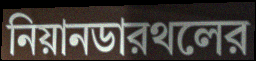
নিয়ানডারথলের